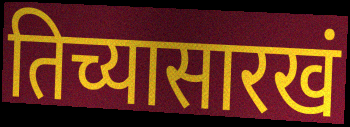
तिच्यासारखं